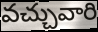
వచ్చువారి